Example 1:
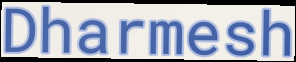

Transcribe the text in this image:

Dharmesh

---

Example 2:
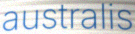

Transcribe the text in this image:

australis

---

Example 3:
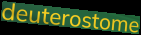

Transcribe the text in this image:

deuterostome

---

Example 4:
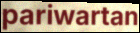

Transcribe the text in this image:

pariwartan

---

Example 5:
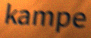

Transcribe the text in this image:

kampe